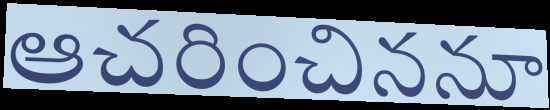
ఆచరించిననూ